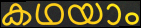
കഥയാം